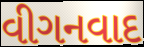
વીગનવાદ